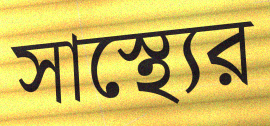
সাস্থ্যের